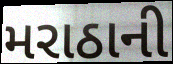
મરાઠાની